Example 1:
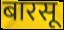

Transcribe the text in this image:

बारसू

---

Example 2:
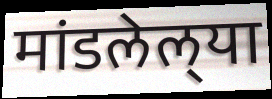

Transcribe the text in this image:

मांडलेल्या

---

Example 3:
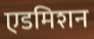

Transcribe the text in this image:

एडमिशन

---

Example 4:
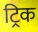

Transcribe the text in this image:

ट्रिक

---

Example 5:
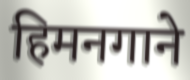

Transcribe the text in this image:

हिमनगाने